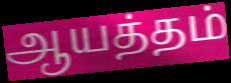
ஆயத்தம்